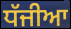
ਧੱਜੀਆ